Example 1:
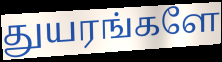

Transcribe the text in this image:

துயரங்களே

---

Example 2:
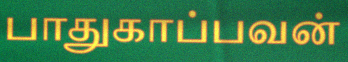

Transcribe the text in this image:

பாதுகாப்பவன்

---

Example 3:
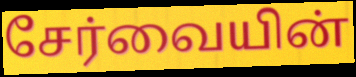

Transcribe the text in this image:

சேர்வையின்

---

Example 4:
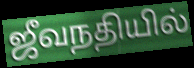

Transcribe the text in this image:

ஜீவநதியில்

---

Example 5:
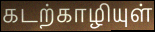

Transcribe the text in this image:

கடற்காழியுள்